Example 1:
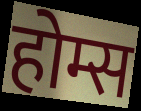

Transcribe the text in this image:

होम्स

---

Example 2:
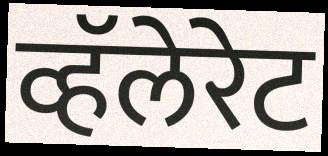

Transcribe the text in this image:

व्हॅलेरेट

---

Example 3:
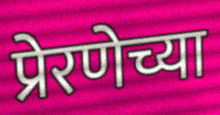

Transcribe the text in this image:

प्रेरणेच्या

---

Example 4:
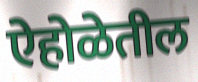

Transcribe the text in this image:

ऐहोळेतील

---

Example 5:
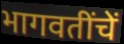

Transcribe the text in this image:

भागवतींचें